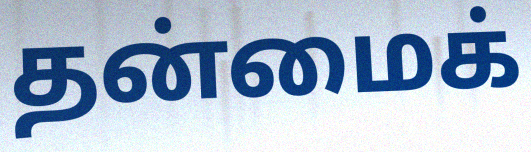
தன்மைக்